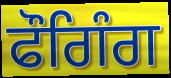
ਫੌਗਿੰਗ